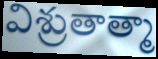
విశ్రుతాత్మా